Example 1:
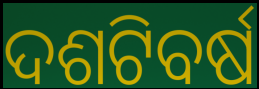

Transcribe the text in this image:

ଦଶଟିବର୍ଷ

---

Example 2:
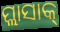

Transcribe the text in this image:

ପ୍ଲାସାକ୍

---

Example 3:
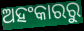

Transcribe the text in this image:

ଅହଂକାରରୁ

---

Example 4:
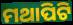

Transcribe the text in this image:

ମଥାପିଟି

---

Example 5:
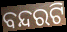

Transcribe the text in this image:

ବନ୍ଦରଟି